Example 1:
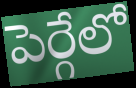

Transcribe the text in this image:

పెర్గేలో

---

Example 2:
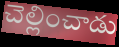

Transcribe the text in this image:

చెల్లించాడు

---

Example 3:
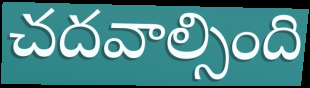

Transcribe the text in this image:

చదవాల్సింది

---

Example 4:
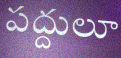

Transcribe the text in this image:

పద్దులూ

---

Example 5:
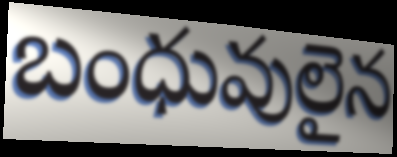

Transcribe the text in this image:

బంధువులైన